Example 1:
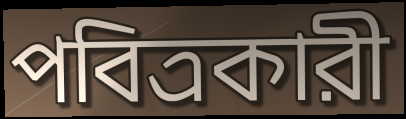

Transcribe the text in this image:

পবিত্রকারী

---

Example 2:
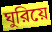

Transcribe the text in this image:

ঘুরিয়ে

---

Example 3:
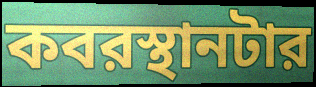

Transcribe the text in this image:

কবরস্থানটার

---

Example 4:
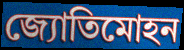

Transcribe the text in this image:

জ্যোতিমোহন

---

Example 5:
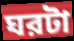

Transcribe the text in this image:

ঘরটা